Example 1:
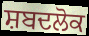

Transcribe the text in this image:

ਸ਼ਬਦਲੋਕ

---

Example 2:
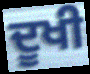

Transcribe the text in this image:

ਦੂਖੀ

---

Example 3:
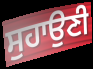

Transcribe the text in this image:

ਸੁਹਾਉਣੀ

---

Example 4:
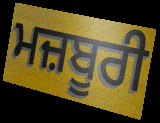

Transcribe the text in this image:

ਮਜ਼ਬੂਰੀ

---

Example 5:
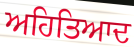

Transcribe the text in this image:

ਅਹਿਤਿਆਦ